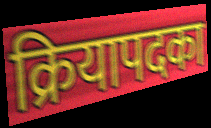
क्रियापदका